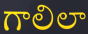
గాలిలా